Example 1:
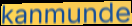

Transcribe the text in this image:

kanmunde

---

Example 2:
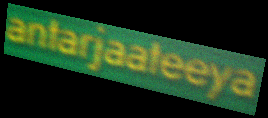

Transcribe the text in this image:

antarjaateeya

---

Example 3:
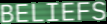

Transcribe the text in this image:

BELIEFS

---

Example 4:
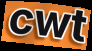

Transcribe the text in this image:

cwt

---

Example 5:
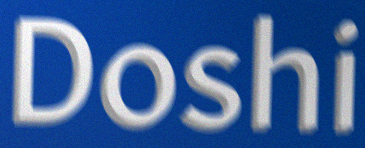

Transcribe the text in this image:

Doshi